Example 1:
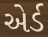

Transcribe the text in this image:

એર્ડ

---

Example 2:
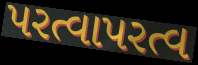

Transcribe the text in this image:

પરત્વાપરત્વ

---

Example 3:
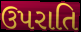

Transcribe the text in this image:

ઉપરાતિ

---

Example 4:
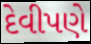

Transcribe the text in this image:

દેવીપણે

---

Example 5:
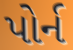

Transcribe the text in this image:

પોર્ન